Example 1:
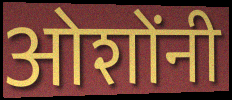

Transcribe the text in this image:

ओशोंनी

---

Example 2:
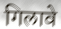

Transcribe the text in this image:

गिलावे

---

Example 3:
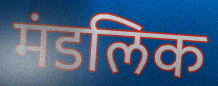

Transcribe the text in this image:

मंडलिक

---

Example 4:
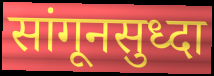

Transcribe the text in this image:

सांगूनसुध्दा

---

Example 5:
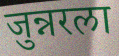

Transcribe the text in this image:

जुन्नरला